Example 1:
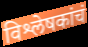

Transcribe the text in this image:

विश्लेषकांचं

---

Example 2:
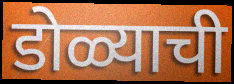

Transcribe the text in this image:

डोळ्याची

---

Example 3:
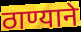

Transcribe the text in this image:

ठाण्याने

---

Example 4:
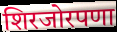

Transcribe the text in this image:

शिरजोरपणा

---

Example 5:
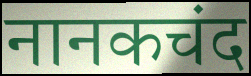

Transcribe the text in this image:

नानकचंद